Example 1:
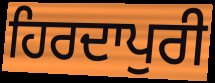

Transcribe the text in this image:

ਹਿਰਦਾਪੁਰੀ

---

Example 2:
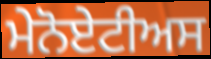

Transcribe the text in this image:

ਮੇਨੋਏਟੀਅਸ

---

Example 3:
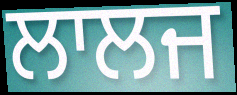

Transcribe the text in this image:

ਲਾਲਜ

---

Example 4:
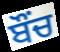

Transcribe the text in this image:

ਬੌਂਚ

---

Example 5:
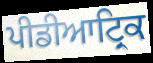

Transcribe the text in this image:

ਪੀਡੀਆਟ੍ਰਿਕ